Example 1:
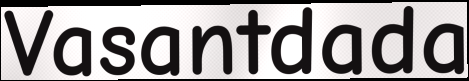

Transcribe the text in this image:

Vasantdada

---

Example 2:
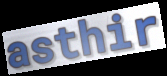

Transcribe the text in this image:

asthir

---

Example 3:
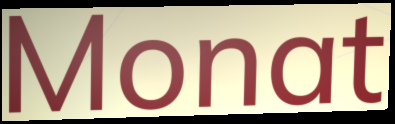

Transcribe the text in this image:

Monat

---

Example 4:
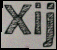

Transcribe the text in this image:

Xij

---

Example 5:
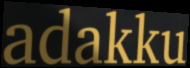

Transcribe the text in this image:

adakku